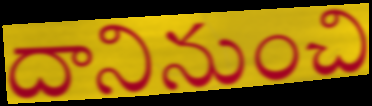
దానినుంచి